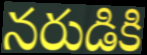
నరుడికి